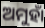
ଅମୁହାଁ